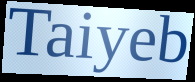
Taiyeb